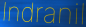
Indranil